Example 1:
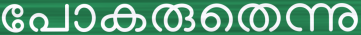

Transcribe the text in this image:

പോകരുതെന്നു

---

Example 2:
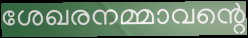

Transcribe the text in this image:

ശേഖരനമ്മാവന്റെ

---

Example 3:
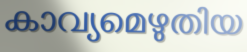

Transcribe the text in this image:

കാവ്യമെഴുതിയ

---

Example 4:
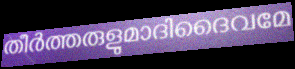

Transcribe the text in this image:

തീർത്തരുളുമാദിദൈവമേ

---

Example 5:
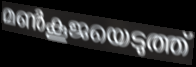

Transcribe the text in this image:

മൺകൂജയെടുത്ത്